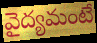
వైద్యమంటే